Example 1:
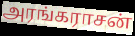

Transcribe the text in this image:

அரங்கராசன்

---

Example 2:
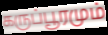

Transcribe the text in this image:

கருப்பூரமும்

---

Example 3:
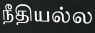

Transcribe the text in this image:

நீதியல்ல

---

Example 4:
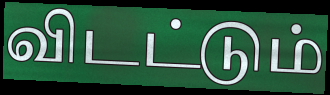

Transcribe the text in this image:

விடட்டும்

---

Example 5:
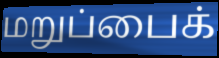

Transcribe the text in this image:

மறுப்பைக்